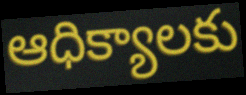
ఆధిక్యాలకు